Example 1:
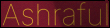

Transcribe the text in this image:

Ashraful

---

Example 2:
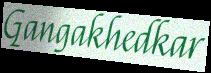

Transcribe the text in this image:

Gangakhedkar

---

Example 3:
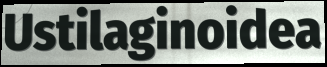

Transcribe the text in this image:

Ustilaginoidea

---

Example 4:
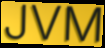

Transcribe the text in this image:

JVM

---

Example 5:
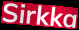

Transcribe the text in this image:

Sirkka